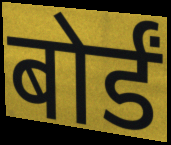
बोर्डं